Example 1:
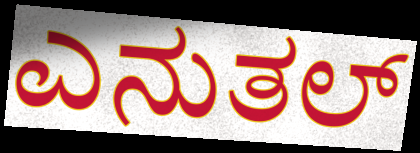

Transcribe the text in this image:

ಎನುತಲ್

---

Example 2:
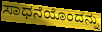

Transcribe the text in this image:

ಸಾಧನೆಯೊಂದನ್ನು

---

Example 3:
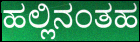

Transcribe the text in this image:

ಹಲ್ಲಿನಂತಹ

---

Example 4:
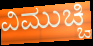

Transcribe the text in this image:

ವಿಮುಚ್ಚಿ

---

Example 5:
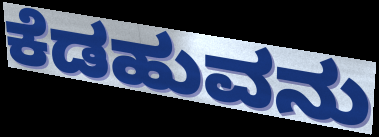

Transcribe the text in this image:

ಕೆಡಹುವನು